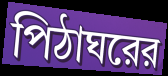
পিঠাঘরের